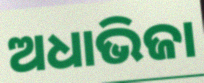
ଅଧାଭିଜା